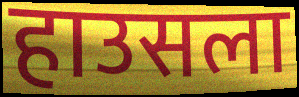
हाउसला